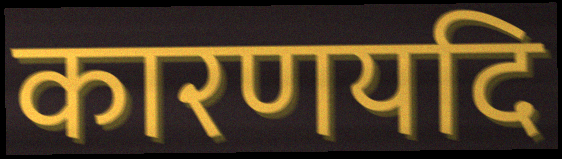
कारणयदि